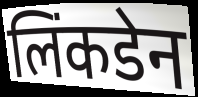
लिंकडेन